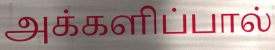
அக்களிப்பால்